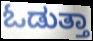
ಓಡುತ್ತಾ